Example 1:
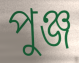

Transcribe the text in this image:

পুঞ্জ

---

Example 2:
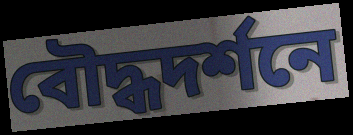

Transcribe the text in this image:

বৌদ্ধদর্শনে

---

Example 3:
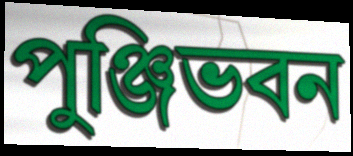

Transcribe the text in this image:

পুঞ্জিভবন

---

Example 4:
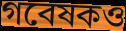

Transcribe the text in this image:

গবেষকও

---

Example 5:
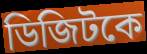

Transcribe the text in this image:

ডিজিটকে